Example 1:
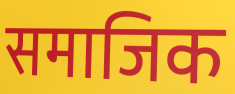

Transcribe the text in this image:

समाजिक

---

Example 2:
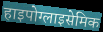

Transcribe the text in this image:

हाइपोग्लाइसेमिक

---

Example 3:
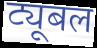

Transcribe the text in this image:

ट्यूबल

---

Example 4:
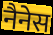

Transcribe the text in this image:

नैनेस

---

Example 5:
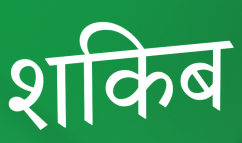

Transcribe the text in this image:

शकिब